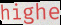
highe